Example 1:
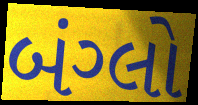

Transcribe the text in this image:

બંગ્લો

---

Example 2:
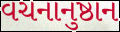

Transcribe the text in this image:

વચનાનુષ્ઠાન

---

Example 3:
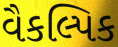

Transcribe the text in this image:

વૈકલ્પિક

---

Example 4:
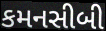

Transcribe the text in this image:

કમનસીબી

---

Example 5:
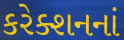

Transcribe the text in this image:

કરેક્શનનાં